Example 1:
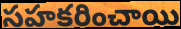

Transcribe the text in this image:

సహకరించాయి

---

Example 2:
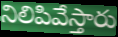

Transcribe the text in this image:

నిలిపివేస్తారు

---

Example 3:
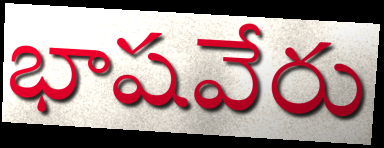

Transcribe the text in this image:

భాషవేరు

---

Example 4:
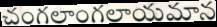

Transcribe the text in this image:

చంగలాంగలాయమాన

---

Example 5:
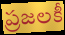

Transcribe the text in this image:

ప్రజలకీ